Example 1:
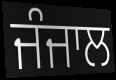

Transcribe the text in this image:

ਜੰਜਾਲ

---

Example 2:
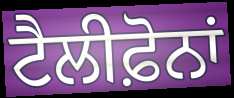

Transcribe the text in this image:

ਟੈਲੀਫ਼ੋਨਾਂ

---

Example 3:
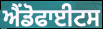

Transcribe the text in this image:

ਐਂਡੋਫਾਈਟਸ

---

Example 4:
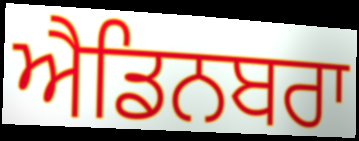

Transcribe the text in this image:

ਐਡਿਨਬਰਾ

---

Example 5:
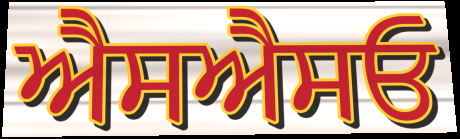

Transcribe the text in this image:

ਐਸਐਸਓ